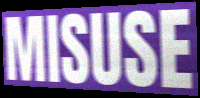
MISUSE